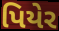
પિયેર